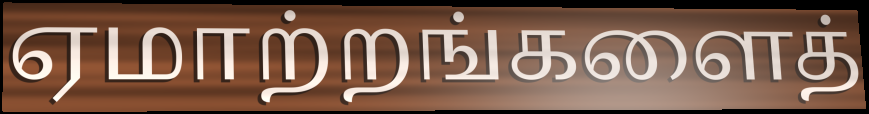
ஏமாற்றங்களைத்